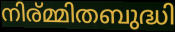
നിര്മ്മിതബുദ്ധി